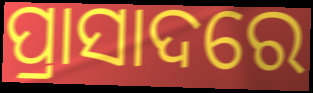
ପ୍ରାସାଦରେ